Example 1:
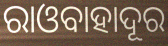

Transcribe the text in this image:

ରାଓବାହାଦୂର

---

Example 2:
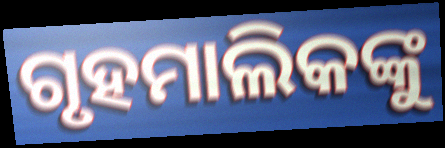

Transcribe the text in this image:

ଗୃହମାଲିକଙ୍କୁ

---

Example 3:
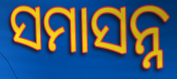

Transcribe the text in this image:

ସମାସନ୍ନ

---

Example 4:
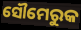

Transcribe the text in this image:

ସୌମେରୁକ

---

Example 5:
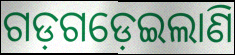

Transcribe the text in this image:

ଗଡ଼ଗଡ଼େଇଲାଣି